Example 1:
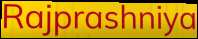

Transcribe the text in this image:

Rajprashniya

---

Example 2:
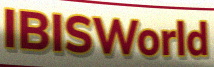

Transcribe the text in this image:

IBISWorld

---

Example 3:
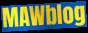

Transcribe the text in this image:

MAWblog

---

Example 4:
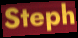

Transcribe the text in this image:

Steph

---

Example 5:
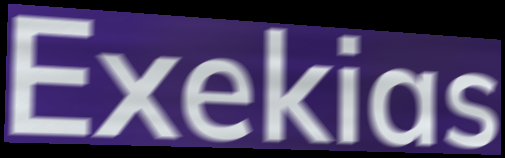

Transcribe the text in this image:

Exekias